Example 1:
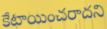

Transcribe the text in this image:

కేటాయించరాదని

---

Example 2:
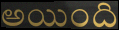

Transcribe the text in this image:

అయింది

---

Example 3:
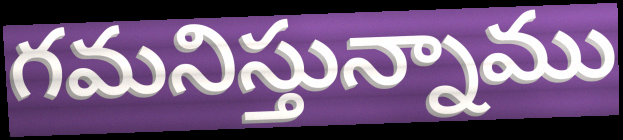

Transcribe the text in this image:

గమనిస్తున్నాము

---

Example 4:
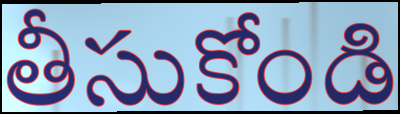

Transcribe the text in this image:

తీసుకోండి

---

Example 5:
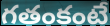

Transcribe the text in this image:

గతంకంటే